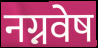
नग्नवेष